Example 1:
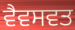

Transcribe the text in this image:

ਵੈਵਸਵਤ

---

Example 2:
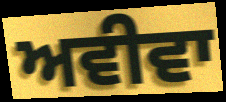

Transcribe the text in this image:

ਅਵੀਵਾ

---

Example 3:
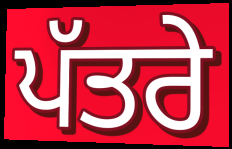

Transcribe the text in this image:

ਪੱਤਰੇ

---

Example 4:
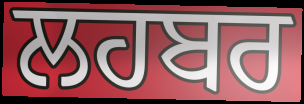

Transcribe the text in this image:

ਲਹਬਰ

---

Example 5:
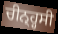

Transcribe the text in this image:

ਚੀਨ੍ਹ੍ਹਸੀ